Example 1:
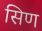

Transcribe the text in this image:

सिण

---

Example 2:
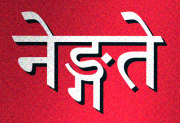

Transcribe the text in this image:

नेङ्गते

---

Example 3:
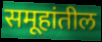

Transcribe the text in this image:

समूहांतील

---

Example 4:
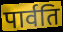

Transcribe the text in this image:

पार्वति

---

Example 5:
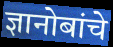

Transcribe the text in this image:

ज्ञानोबांचे